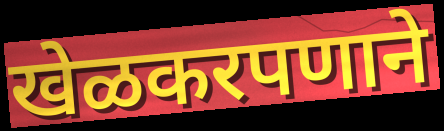
खेळकरपणाने